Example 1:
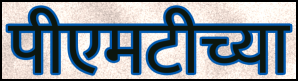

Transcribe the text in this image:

पीएमटीच्या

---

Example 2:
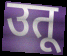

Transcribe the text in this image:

उतू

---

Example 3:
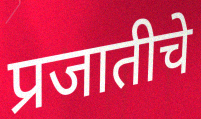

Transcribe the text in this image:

प्रजातीचे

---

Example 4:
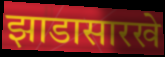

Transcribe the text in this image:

झाडासारखे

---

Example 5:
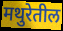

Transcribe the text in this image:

मथुरेतील